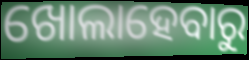
ଖୋଲାହେବାରୁ